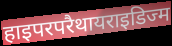
हाइपरपरैथायराइडिज्म